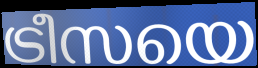
ട്രീസയെ